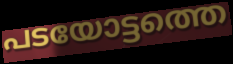
പടയോട്ടത്തെ